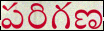
పరిగణ